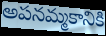
అపనమ్మకానికి